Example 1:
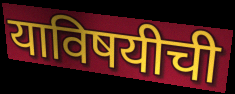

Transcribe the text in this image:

याविषयीची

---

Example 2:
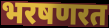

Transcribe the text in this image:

भरषणरत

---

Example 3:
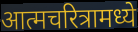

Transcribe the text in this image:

आत्मचरित्रामध्ये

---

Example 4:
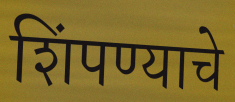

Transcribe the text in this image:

शिंपण्याचे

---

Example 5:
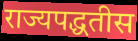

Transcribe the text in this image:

राज्यपद्धतीस